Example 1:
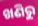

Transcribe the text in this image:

ଖଣିରୁ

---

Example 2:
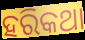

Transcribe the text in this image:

ହରିକଥା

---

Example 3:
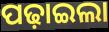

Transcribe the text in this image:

ପଢ଼ାଇଲା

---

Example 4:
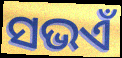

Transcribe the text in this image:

ସଭଏଁ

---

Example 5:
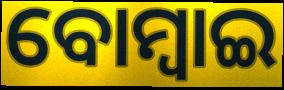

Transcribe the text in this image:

ବୋମ୍ୱାଇ